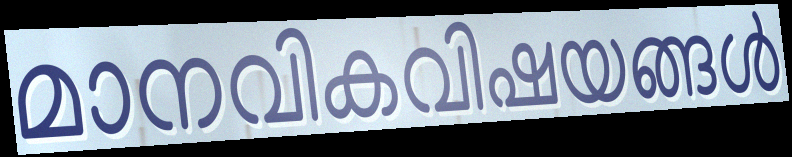
മാനവികവിഷയങ്ങൾ